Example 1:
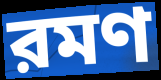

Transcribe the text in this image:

রমণ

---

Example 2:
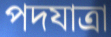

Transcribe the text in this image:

পদযাত্রা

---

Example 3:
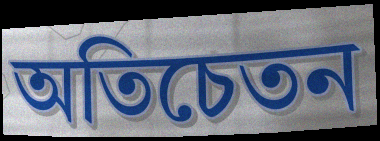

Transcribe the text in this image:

অতিচেতন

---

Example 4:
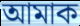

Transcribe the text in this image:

আমাক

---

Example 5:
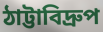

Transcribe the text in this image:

ঠাট্টাবিদ্রুপ